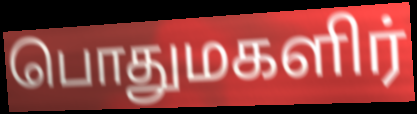
பொதுமகளிர்